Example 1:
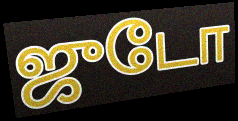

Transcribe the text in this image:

ஜுடோ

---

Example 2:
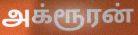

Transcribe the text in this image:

அக்ரூரன்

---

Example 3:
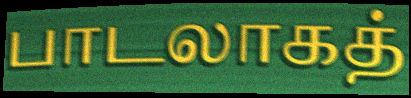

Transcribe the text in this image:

பாடலாகத்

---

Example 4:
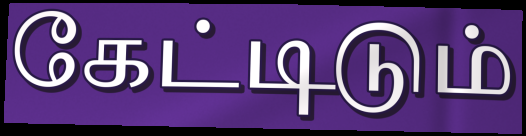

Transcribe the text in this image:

கேட்டிடும்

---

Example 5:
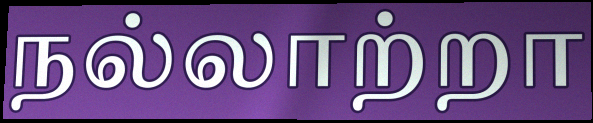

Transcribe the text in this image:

நல்லாற்றா